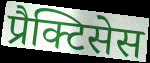
प्रैक्टिसेस